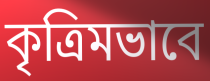
কৃত্রিমভাবে